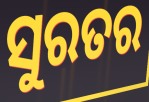
ସୁରତର